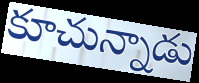
కూచున్నాడు